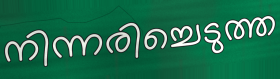
നിന്നരിച്ചെടുത്ത